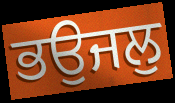
ਭਉਜਲੁ